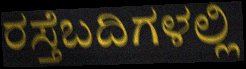
ರಸ್ತೆಬದಿಗಳಲ್ಲಿ